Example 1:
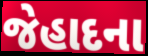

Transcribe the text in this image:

જેહાદના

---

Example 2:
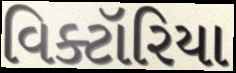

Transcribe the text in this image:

વિક્ટૉરિયા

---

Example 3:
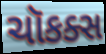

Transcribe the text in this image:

ચૉકક્સ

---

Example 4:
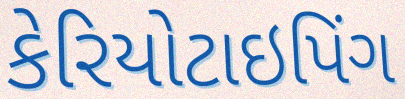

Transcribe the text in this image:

કેરિયોટાઇપિંગ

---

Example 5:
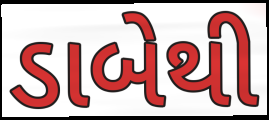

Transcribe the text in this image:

ડાબેથી